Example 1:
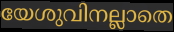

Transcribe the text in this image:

യേശുവിനല്ലാതെ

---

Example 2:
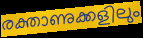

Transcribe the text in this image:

രക്താണുക്കളിലും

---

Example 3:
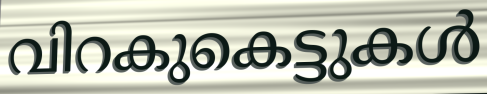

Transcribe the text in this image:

വിറകുകെട്ടുകൾ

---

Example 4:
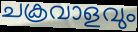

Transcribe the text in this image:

ചക്രവാളവും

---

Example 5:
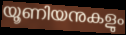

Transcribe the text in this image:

യൂണിയനുകളും